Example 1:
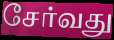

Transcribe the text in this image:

சேர்வது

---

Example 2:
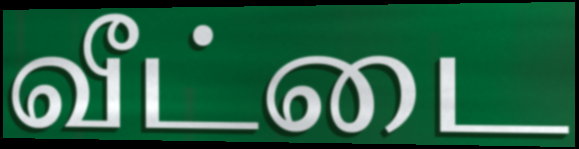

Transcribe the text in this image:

வீட்டை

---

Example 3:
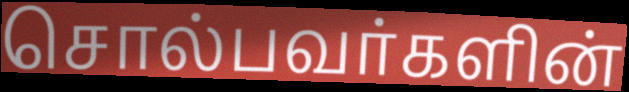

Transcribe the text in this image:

சொல்பவர்களின்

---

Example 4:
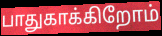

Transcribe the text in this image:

பாதுகாக்கிறோம்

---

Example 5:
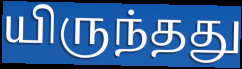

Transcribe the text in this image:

யிருந்தது